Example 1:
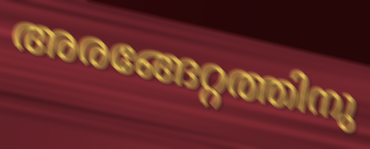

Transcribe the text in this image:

അരങ്ങേറ്റത്തിനു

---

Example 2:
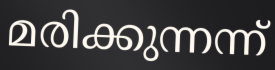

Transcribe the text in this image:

മരിക്കുന്നന്ന്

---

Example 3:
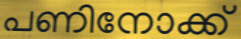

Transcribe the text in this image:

പണിനോക്ക്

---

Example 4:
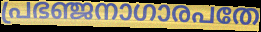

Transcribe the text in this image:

പ്രഭഞ്ജനാഗാരപതേ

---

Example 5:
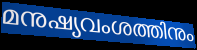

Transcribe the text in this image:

മനുഷ്യവംശത്തിനും